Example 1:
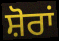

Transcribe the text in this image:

ਸ਼ੋਰਾਂ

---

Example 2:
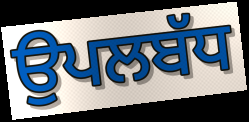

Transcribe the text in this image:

ਉਪਲਬੱਧ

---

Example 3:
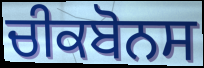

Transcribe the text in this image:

ਚੀਕਬੋਨਸ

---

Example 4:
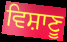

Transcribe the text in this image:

ਵਿਸ਼ਾਣੂ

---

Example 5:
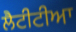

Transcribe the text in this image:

ਲੈਟੀਟੀਆ